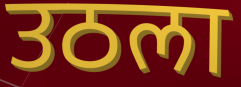
उठला